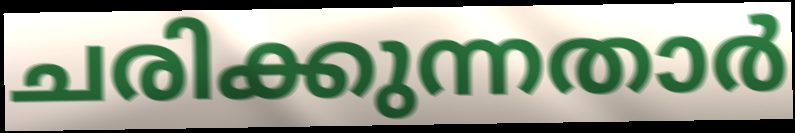
ചരിക്കുന്നതാർ